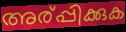
അര്പ്പിക്കുക